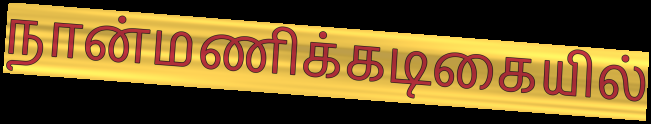
நான்மணிக்கடிகையில்